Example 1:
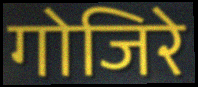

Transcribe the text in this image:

गोजिरे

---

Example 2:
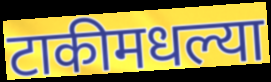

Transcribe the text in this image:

टाकीमधल्या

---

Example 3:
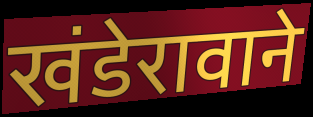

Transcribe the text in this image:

खंडेरावाने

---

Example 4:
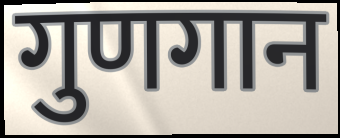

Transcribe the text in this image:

गुणगान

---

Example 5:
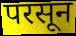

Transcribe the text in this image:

परसून